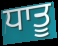
ਧਾਤੂ